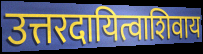
उत्तरदायित्वाशिवाय